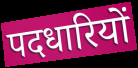
पदधारियों